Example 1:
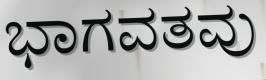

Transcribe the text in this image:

ಭಾಗವತವು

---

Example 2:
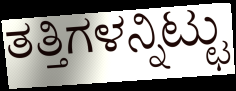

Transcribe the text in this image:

ತತ್ತಿಗಳನ್ನಿಟ್ಟು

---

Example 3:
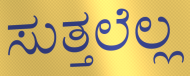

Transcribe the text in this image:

ಸುತ್ತಲೆಲ್ಲ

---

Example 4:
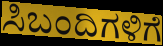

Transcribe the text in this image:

ಸಿಬಂದಿಗಳಿಗೆ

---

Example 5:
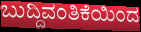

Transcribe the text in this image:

ಬುದ್ದಿವಂತಿಕೆಯಿಂದ